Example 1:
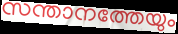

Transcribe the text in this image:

സന്താനത്തേയും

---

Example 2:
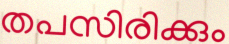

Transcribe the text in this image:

തപസിരിക്കും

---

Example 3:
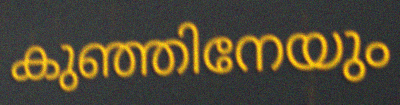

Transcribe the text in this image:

കുഞ്ഞിനേയും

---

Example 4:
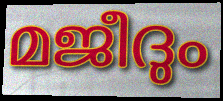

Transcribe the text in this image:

മജീദും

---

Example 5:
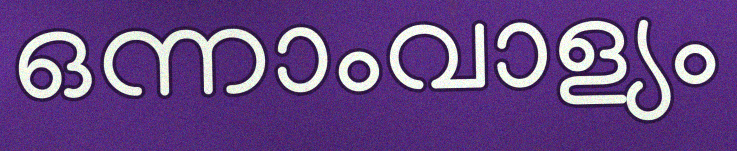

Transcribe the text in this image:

ഒന്നാംവാള്യം